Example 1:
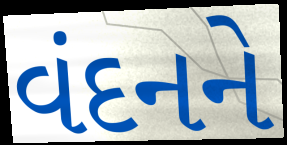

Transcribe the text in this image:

વંદનને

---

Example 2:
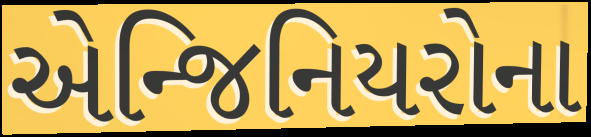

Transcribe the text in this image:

એન્જિનિયરોના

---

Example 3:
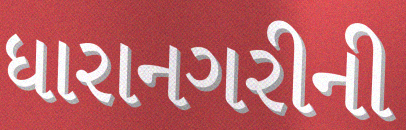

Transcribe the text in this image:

ધારાનગરીની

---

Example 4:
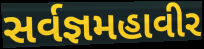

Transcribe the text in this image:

સર્વજ્ઞમહાવીર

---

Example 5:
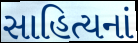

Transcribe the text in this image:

સાહિત્યનાં